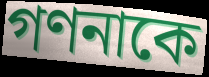
গণনাকে